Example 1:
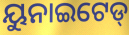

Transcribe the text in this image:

ୟୁନାଇଟେଡ୍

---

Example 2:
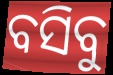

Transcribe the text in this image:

ବସିବୁ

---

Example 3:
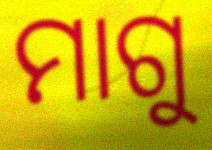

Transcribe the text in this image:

ମାଗୁ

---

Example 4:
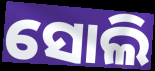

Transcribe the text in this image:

ସୋଲି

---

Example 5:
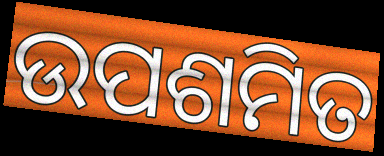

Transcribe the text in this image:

ଉପଶମିତ